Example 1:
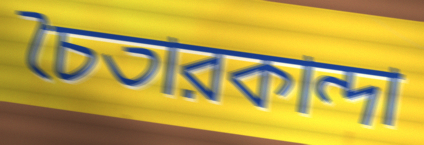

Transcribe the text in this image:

চৈতারকান্দা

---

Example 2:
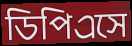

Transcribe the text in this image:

ডিপিএসে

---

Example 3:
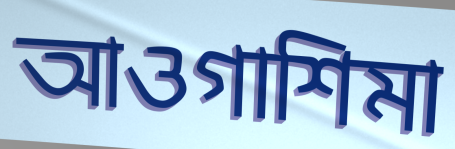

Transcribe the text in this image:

আওগাশিমা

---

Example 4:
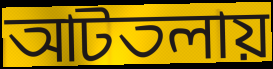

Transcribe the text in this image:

আটতলায়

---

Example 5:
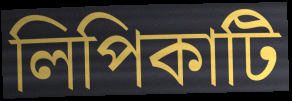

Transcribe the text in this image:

লিপিকাটি